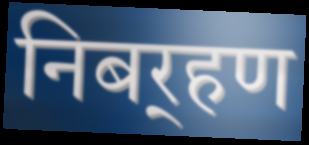
निबर्हण